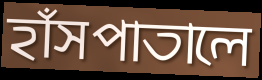
হাঁসপাতালে